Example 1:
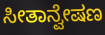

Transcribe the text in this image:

ಸೀತಾನ್ವೇಷಣ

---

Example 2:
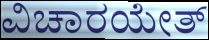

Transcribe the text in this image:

ವಿಚಾರಯೇತ್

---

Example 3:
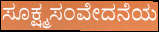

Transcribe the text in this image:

ಸೂಕ್ಷ್ಮಸಂವೇದನೆಯ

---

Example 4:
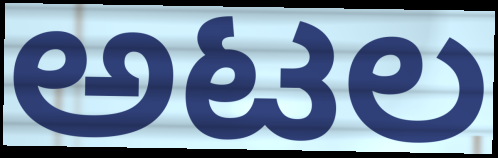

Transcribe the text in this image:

ಅಟಲ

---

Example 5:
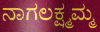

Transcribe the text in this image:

ನಾಗಲಕ್ಷ್ಮಮ್ಮ